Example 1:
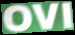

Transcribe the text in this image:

OVI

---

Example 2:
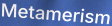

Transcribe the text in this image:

Metamerism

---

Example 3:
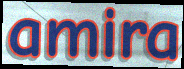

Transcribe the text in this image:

amira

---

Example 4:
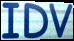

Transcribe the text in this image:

IDV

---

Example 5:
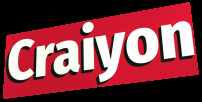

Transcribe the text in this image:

Craiyon